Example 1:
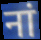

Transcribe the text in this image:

नां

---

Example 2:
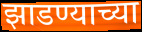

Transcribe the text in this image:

झाडण्याच्या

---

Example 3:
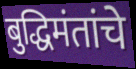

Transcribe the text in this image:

बुद्धिमंतांचे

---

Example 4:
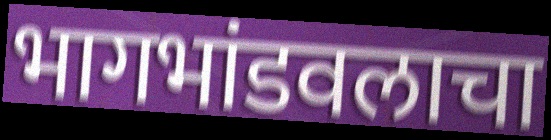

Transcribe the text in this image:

भागभांडवलाचा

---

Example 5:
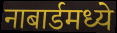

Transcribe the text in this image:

नाबार्डमध्ये